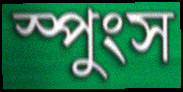
স্পুংস